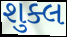
શુક્લ